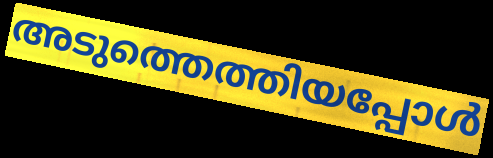
അടുത്തെത്തിയപ്പോൾ